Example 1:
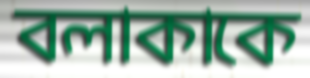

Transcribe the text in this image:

বলাকাকে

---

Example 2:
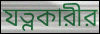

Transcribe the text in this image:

যত্নকারীর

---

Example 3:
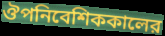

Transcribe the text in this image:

ঔপনিবেশিককালের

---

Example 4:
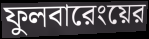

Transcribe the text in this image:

ফুলবারেংয়ের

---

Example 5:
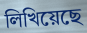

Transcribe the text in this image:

লিখিয়েছে